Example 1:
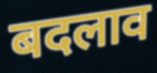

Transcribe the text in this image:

बदलाव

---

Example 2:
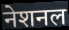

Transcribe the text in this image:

नेशनल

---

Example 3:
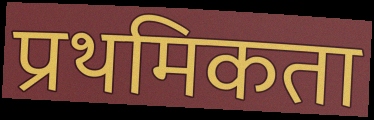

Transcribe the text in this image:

प्रथमिकता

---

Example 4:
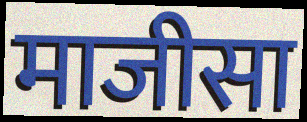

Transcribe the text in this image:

माजीसा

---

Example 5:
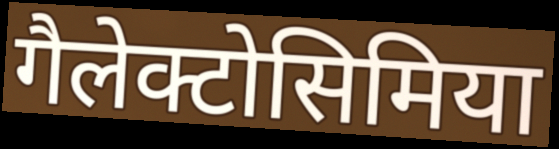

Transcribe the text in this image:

गैलेक्टोसिमिया